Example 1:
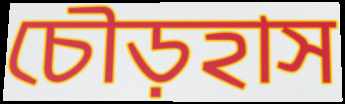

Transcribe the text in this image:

চৌড়হাস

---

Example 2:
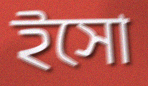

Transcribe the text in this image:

ইসো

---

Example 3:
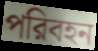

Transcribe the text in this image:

পরিবহন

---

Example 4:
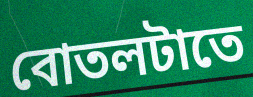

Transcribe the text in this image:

বোতলটাতে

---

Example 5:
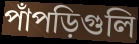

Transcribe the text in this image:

পাঁপড়িগুলি